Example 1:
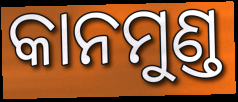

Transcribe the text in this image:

କାନମୁଣ୍ଡ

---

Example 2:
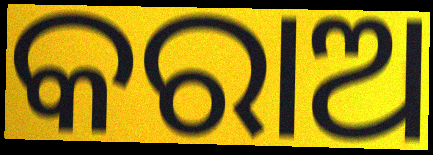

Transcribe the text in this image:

କରାଅ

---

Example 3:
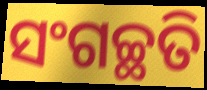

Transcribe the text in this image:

ସଂଗଚ୍ଛତି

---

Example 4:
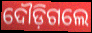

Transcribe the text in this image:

ଦୌଡ଼ିଗଲେ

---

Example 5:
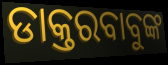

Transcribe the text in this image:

ଡାକ୍ତରବାବୁଙ୍କ